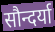
सौन्दर्या